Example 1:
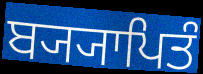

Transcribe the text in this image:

ਬ੍ਯ੍ਯਾਪਿਤੰ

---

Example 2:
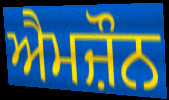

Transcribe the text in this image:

ਐਮਜ਼ੌਨ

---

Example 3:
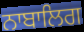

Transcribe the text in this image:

ਨਾਬਾਲਿਗ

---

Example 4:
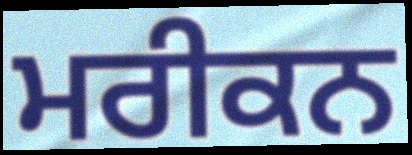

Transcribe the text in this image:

ਮਰੀਕਨ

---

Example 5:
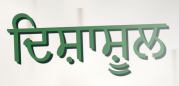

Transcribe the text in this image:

ਦਿਸ਼ਾਸ਼ੂਲ